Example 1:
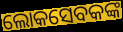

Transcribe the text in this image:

ଲୋକସେବକଙ୍କ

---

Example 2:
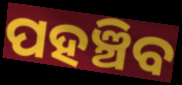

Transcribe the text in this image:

ପହଞ୍ଚିବ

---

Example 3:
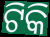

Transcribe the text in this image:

ଟିକି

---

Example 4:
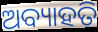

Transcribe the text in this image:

ଅବ୍ୟାହତି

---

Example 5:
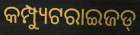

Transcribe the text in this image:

କମ୍ପ୍ୟୁଟରାଇଜଡ୍